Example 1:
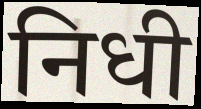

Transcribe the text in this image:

निधी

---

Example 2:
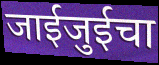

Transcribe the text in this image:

जाईजुईचा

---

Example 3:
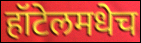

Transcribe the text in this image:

हॉटेलमधेच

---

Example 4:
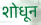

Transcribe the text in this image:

शोधून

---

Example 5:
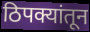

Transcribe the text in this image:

ठिपक्यांतून